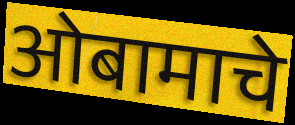
ओबामाचे